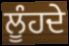
ਲੂੰਹਦੇ